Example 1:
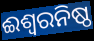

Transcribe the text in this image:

ଈଶ୍ୱରନିଷ୍ଠ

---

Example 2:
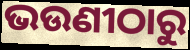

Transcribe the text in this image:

ଭଉଣୀଠାରୁ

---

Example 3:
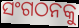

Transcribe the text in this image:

ସଂଗଠନକୁ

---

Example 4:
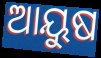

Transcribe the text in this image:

ଆୟୁଷ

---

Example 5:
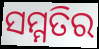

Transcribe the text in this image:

ସମ୍ମତିର